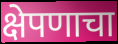
क्षेपणाचा